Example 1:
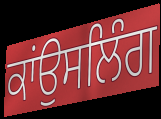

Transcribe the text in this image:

ਕਾਂਉਸਲਿੰਗ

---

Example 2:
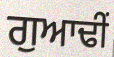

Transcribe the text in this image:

ਗੁਆਢੀਂ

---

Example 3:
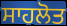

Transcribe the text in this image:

ਸਾਹਲੋਤ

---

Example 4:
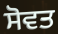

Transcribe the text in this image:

ਸੋਵਤ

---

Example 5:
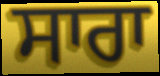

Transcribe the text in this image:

ਸਾਰਾ